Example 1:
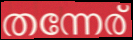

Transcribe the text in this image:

തന്നേര്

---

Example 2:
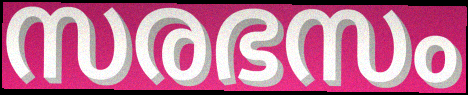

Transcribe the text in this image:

സരഭസം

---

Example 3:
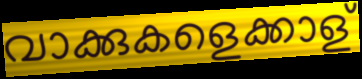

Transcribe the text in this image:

വാക്കുകളെക്കാള്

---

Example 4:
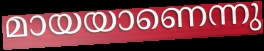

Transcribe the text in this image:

മായയാണെന്നു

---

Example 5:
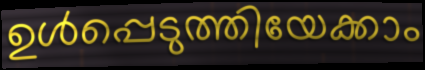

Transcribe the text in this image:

ഉൾപ്പെടുത്തിയേക്കാം